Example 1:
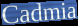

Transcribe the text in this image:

Cadmia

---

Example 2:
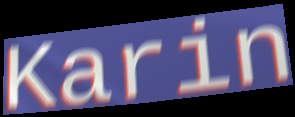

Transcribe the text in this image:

Karin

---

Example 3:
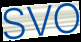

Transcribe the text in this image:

SVO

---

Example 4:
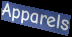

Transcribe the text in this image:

Apparels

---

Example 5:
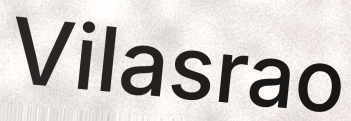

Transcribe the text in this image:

Vilasrao